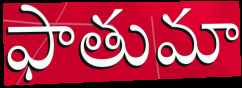
ఫాతుమా